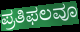
ಪ್ರತಿಫಲವೂ